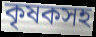
কৃষকসহ